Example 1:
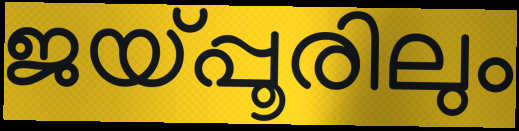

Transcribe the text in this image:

ജയ്പ്പൂരിലും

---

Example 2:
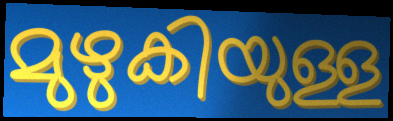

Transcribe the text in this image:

മുഴുകിയുള്ള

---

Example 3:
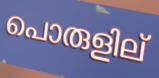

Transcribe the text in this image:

പൊരുളില്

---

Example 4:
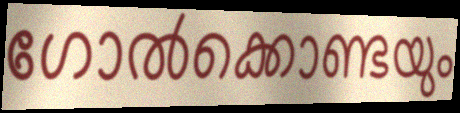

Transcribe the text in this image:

ഗോൽക്കൊണ്ടയും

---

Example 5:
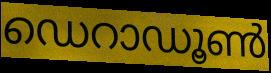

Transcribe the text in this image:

ഡെറാഡൂൺ